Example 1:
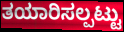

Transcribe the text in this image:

ತಯಾರಿಸಲ್ಪಟ್ಟು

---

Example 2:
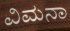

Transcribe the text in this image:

ವಿಮನಾ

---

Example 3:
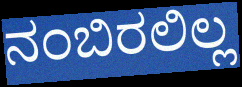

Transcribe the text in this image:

ನಂಬಿರಲಿಲ್ಲ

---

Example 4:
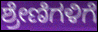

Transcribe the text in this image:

ಶ್ರೇಣಿಗಳಿಗೆ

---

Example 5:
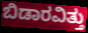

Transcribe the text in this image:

ಬಿಡಾರವಿತ್ತು